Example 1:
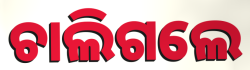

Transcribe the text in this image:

ଚାଲିଗଲେ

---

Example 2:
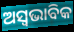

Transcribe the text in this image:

ଅସ୍ୱଭାବିକ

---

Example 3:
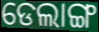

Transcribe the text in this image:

ଡେଲାଙ୍ଗ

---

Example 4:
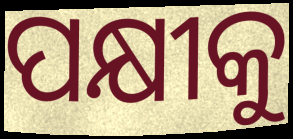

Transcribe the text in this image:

ପକ୍ଷୀକୁ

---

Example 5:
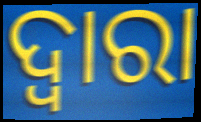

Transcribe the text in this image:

ଦ୍ବାରା